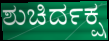
ಶುಚಿರ್ದಕ್ಷ